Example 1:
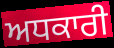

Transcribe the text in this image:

ਅਧਕਾਰੀ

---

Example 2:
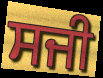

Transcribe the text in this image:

ਸਜੀ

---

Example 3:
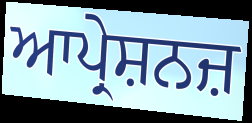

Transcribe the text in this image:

ਆਪ੍ਰੇਸ਼ਨਜ਼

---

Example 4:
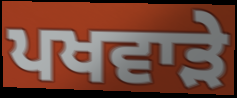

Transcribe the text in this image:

ਪਖਵਾੜੇ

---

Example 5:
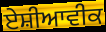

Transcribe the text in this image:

ਏਸ਼ੀਆਵੀਕ